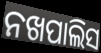
ନଖପାଲିସ